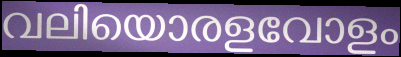
വലിയൊരളവോളം